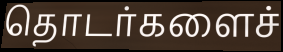
தொடர்களைச்